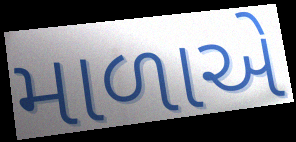
માળાએ